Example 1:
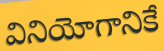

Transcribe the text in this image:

వినియోగానికే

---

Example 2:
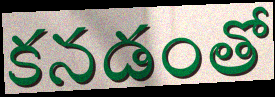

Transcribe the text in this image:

కనడంతో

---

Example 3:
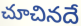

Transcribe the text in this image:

చూచినదే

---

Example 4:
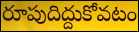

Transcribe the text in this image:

రూపుదిద్దుకోవటం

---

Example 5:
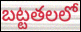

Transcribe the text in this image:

బట్టతలలో